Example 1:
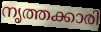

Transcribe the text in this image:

നൃത്തക്കാരി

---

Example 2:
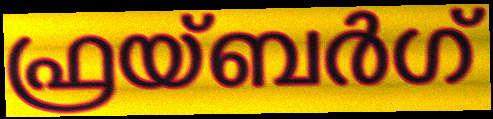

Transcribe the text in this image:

ഫ്രയ്ബർഗ്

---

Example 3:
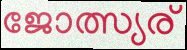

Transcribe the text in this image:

ജോത്സ്യര്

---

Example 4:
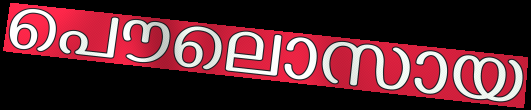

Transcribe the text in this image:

പൌലൊസായ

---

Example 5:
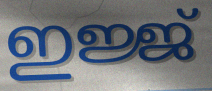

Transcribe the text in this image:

ഇജ്ജ്